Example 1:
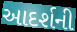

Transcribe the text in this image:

આદર્શની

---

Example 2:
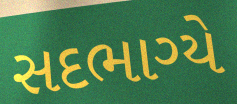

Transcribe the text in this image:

સદભાગ્યે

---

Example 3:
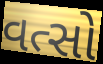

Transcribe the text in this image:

વત્સો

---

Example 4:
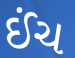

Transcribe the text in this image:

ઈંચ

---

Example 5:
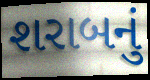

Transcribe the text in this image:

શરાબનું